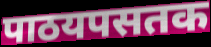
पाठयपसतक